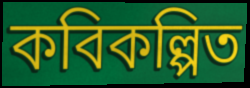
কবিকল্পিত